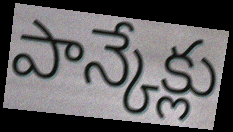
పాన్కేక్లు